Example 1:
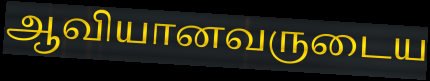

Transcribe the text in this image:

ஆவியானவருடைய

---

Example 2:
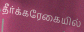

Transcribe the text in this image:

தீர்க்கரேகையில்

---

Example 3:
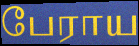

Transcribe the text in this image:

பேராய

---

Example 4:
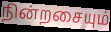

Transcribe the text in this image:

நின்றசையும்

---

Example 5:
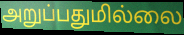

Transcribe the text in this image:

அறுப்பதுமில்லை